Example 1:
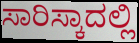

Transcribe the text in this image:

ಸಾರಿಸ್ಕಾದಲ್ಲಿ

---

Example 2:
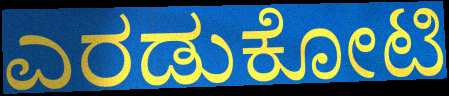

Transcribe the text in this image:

ಎರಡುಕೋಟಿ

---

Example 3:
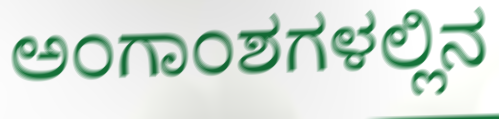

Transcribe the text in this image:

ಅಂಗಾಂಶಗಳಲ್ಲಿನ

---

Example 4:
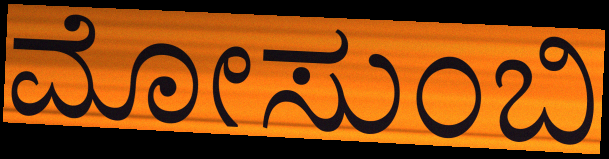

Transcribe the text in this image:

ಮೋಸುಂಬಿ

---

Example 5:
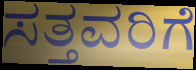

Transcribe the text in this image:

ಸತ್ತವರಿಗೆ